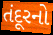
તંદૂરનો